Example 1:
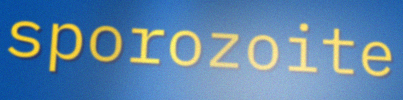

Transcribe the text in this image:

sporozoite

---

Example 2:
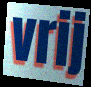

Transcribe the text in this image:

vrij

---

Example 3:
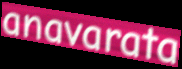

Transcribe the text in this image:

anavarata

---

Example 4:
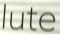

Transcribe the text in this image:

lute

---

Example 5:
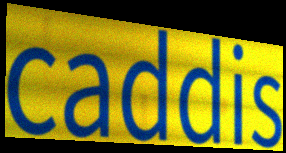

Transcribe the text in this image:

caddis